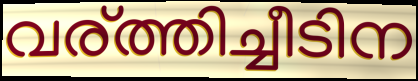
വര്ത്തിച്ചീടിന